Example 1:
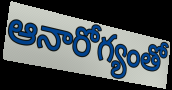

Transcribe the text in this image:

ఆనారోగ్యంతో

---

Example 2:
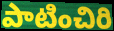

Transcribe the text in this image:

పాటించిరి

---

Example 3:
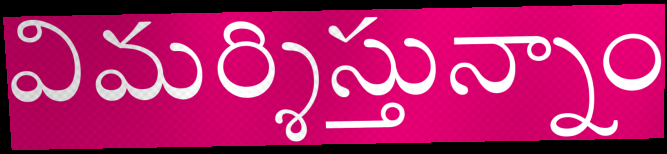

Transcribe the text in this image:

విమర్శిస్తున్నాం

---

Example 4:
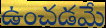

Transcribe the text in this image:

ఉంచడమే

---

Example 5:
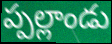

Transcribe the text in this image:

ప్పల్లాండు